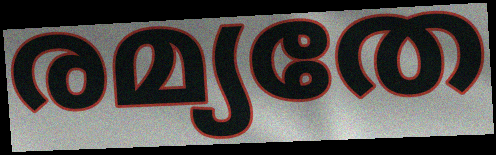
രമ്യതേ